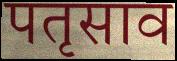
पतृसाव